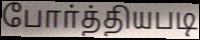
போர்த்தியபடி